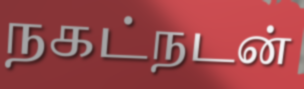
நகட்நடன்